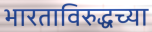
भारताविरुद्धच्या